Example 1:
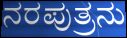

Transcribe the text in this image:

ನರಪುತ್ರನು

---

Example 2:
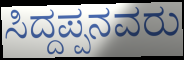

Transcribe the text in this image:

ಸಿದ್ದಪ್ಪನವರು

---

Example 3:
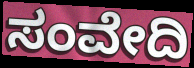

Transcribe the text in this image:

ಸಂವೇದಿ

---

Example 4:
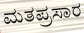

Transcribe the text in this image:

ಮತಪ್ರಸಾರ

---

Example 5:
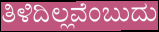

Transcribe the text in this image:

ತಿಳಿದಿಲ್ಲವೆಂಬುದು